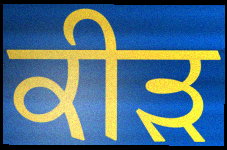
ਕੀੜ